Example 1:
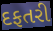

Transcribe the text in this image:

દફતરી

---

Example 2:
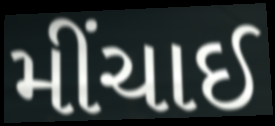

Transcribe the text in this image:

મીંચાઈ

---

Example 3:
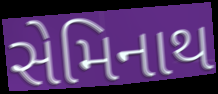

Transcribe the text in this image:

સેમિનાથ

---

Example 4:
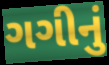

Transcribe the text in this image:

ગગીનું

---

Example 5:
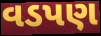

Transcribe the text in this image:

વડપણ